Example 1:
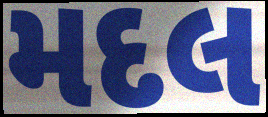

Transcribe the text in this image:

મદલ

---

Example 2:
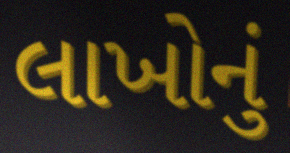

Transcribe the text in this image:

લાખોનું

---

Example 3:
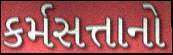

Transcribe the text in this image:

કર્મસત્તાનો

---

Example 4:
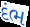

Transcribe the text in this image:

દંભ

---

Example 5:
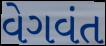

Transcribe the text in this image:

વેગવંત